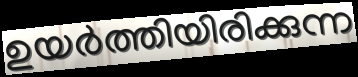
ഉയർത്തിയിരിക്കുന്ന